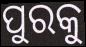
ପୁରକୁ